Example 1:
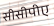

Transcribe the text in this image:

सीसीपीए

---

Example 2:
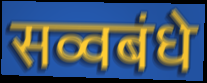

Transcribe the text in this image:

सव्वबंधे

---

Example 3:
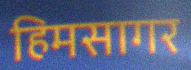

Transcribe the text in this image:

हिमसागर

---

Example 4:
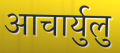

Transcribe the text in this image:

आचार्युलु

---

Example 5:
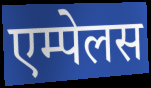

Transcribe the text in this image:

एम्पेलस